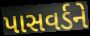
પાસવર્ડને